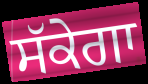
ਸੱਕੇਗਾ